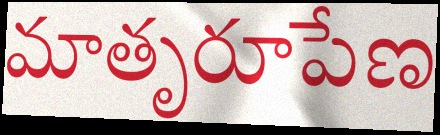
మాతృరూపేణ